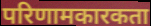
परिणामकारकता